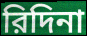
রিদিনা